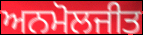
ਅਨਮੋਲਜੀਤ